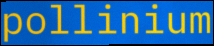
pollinium